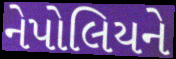
નેપોલિયને